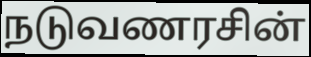
நடுவணரசின்